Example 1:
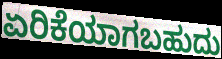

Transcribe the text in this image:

ಏರಿಕೆಯಾಗಬಹುದು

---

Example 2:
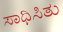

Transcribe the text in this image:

ಸಾಧಿಸಿತು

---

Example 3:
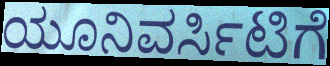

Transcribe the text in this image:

ಯೂನಿವರ್ಸಿಟಿಗೆ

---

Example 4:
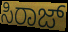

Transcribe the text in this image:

ಸಿರಾಜ್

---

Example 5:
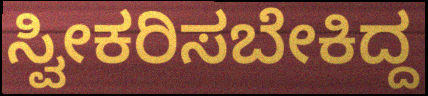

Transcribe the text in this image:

ಸ್ವೀಕರಿಸಬೇಕಿದ್ದ